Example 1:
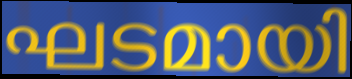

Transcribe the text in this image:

ഘടമായി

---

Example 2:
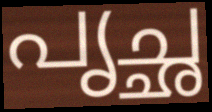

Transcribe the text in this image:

പൃച്ഛ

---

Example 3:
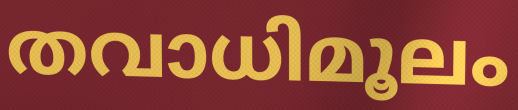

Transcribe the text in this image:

തവാധിമൂലം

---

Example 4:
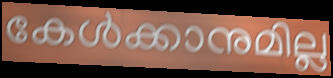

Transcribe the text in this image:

കേൾക്കാനുമില്ല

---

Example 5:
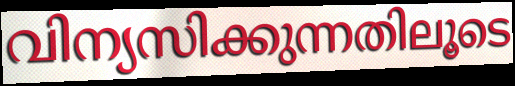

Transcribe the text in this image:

വിന്യസിക്കുന്നതിലൂടെ